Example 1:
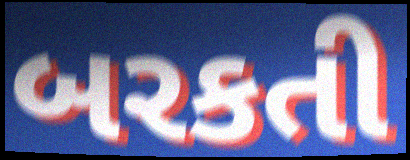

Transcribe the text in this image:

બરકતી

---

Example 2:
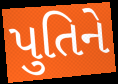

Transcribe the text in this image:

પુતિને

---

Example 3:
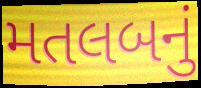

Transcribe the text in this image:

મતલબનું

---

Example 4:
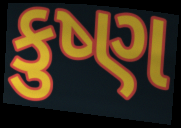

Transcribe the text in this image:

કુષ્ણ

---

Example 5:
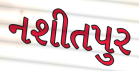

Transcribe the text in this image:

નશીતપુર